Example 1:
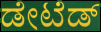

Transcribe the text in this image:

ಡೇಟೆಡ್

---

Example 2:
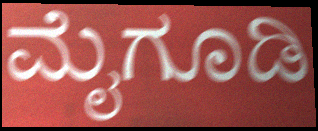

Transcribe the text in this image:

ಮೈಗೂಡಿ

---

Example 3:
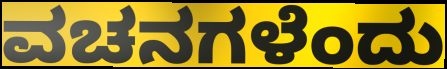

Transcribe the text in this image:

ವಚನಗಳೆಂದು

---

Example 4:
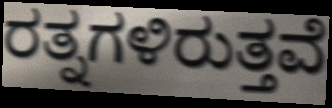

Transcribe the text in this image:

ರತ್ನಗಳಿರುತ್ತವೆ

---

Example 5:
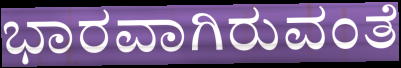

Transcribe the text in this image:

ಭಾರವಾಗಿರುವಂತೆ